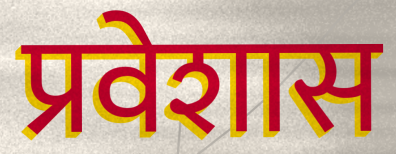
प्रवेशास